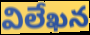
విలేఖన